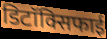
डिटॉक्सिफाई